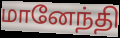
மானேந்தி